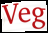
Veg